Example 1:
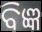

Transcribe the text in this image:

ବିଜ୍ଞ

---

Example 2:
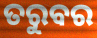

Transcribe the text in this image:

ତରୁବର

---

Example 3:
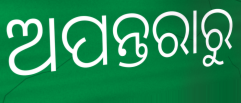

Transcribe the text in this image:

ଅପନ୍ତରାରୁ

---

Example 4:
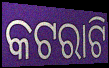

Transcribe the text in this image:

କଟରାଟି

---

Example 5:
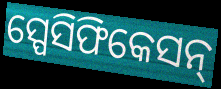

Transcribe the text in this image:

ସ୍ପେସିଫିକେସନ୍